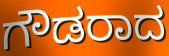
ಗೌಡರಾದ